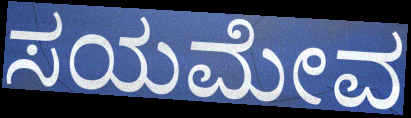
ಸಯಮೇವ